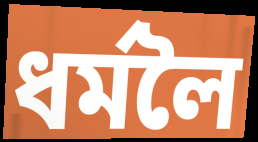
ধৰ্মলৈ